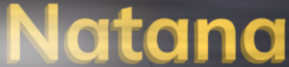
Natana